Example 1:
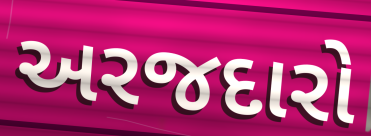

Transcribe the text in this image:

અરજદારો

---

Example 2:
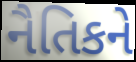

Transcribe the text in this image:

નૈતિકને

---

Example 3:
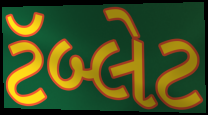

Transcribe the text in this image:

ટૅબ્લેટ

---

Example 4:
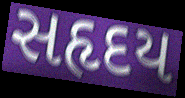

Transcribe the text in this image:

સહૃદય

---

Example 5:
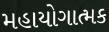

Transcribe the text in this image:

મહાયોગાત્મક